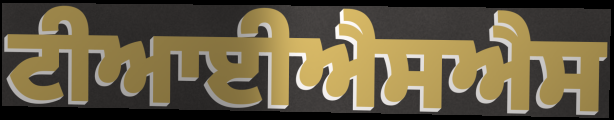
ਟੀਆਈਐਸਐਸ